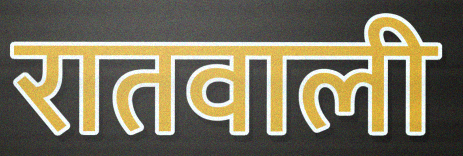
रातवाली